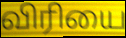
விரியை